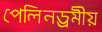
পেলিনড্ৰমীয়